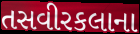
તસવીરકલાના